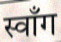
स्वाँग